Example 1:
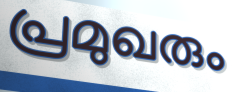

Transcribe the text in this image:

പ്രമുഖരും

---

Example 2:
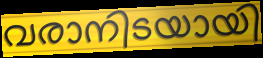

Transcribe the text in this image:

വരാനിടയായി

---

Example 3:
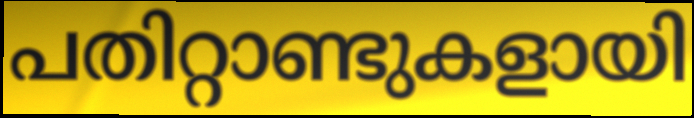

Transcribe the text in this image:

പതിറ്റാണ്ടുകളായി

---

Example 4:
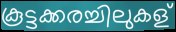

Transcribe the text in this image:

കൂട്ടക്കരച്ചിലുകള്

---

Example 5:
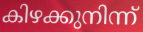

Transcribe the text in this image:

കിഴക്കുനിന്ന്